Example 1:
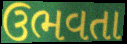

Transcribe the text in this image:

ઉભવતા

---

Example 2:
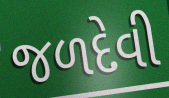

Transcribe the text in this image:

જળદેવી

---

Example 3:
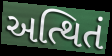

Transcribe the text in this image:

અત્થિતં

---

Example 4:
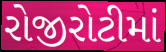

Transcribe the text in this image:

રોજીરોટીમાં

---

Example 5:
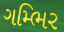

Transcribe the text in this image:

ગમ્ભિર